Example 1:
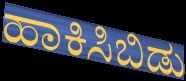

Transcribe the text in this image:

ಹಾಕಿಸಿಬಿಡು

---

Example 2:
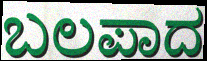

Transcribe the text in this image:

ಬಲಪಾದ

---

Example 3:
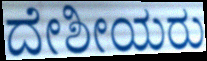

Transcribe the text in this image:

ದೇಶೀಯರು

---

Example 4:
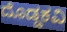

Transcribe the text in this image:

ದೊಡ್ಡಕವಿ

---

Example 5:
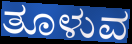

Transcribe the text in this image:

ತೂಳುವ